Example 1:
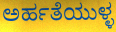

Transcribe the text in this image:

ಅರ್ಹತೆಯುಳ್ಳ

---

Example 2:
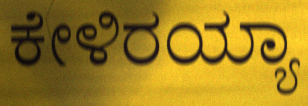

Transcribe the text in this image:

ಕೇಳಿರಯ್ಯಾ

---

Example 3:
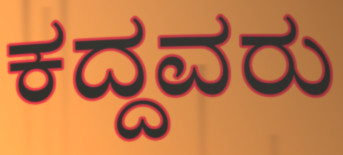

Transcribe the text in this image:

ಕದ್ದವರು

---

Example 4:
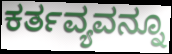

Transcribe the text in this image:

ಕರ್ತವ್ಯವನ್ನೂ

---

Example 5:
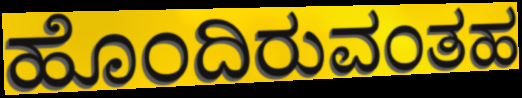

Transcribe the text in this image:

ಹೊಂದಿರುವಂತಹ